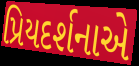
પ્રિયદર્શનાએ